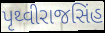
પૃથ્વીરાજસિંહ